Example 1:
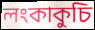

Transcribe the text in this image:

লংকাকুচি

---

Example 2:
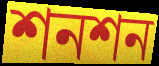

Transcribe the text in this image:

শনশন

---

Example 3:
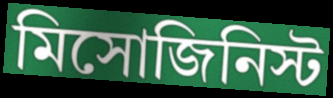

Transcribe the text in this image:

মিসোজিনিস্ট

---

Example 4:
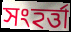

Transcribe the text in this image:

সংহর্ত্তা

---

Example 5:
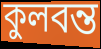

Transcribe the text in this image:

কুলবন্ত